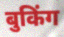
बुकिंग